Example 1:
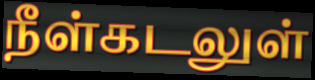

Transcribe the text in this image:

நீள்கடலுள்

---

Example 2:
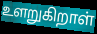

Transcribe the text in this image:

உளறுகிறாள்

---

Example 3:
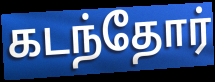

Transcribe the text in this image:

கடந்தோர்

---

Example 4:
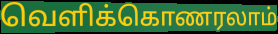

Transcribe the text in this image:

வெளிக்கொணரலாம்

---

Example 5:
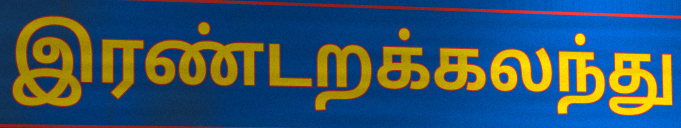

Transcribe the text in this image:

இரண்டறக்கலந்து